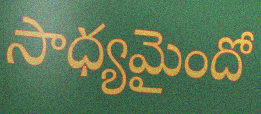
సాధ్యమైందో